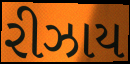
રીઝાય